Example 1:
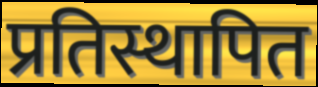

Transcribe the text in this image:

प्रतिस्थापित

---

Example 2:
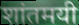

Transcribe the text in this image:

शांतमयी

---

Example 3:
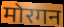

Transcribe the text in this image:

मोरगन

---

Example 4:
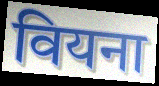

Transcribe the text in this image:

वियना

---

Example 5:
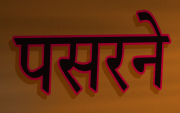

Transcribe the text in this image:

पसरने